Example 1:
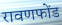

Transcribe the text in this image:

रावणफोंड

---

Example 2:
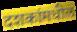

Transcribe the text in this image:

दशकांमधील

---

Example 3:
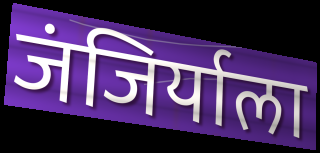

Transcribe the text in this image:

जंजिर्याला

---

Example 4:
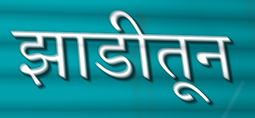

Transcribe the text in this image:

झाडीतून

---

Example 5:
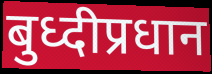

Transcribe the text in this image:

बुध्दीप्रधान